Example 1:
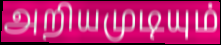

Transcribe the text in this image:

அறியமுடியும்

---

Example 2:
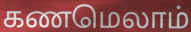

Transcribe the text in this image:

கணமெலாம்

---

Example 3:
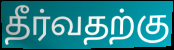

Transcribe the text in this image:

தீர்வதற்கு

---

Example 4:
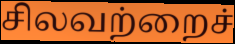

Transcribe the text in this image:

சிலவற்றைச்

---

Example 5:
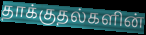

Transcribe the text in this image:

தாக்குதல்களின்